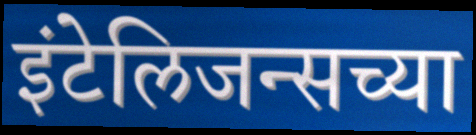
इंटेलिजन्सच्या